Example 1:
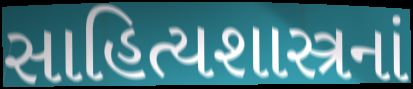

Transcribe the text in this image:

સાહિત્યશાસ્ત્રનાં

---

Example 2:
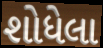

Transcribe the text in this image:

શોધેલા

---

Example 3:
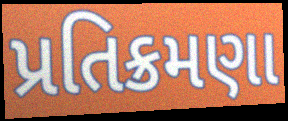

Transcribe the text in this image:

પ્રતિક્રમણા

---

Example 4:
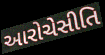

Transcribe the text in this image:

આરોચેસીતિ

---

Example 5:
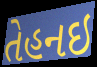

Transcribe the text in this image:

તેહનઇ